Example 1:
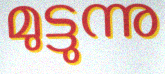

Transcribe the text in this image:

മുട്ടുന്നു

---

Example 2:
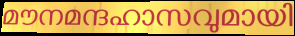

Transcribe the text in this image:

മൗനമന്ദഹാസവുമായി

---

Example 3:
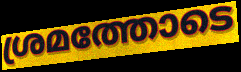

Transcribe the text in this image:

ശ്രമത്തോടെ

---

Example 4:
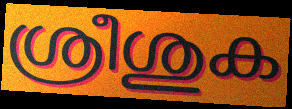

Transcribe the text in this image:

ശ്രീശുക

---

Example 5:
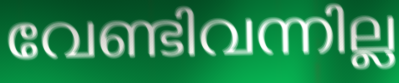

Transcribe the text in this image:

വേണ്ടിവന്നില്ല